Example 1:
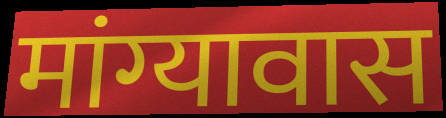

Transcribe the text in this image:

मांग्यावास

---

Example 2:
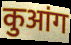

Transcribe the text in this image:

कुआंग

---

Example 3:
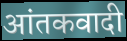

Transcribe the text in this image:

आंतकवादी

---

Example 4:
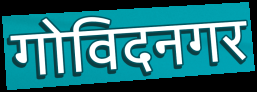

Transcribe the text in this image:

गोविदनगर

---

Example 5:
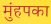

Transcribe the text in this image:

मुंहपका